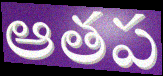
ఆతప